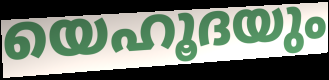
യെഹൂദയും